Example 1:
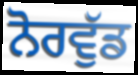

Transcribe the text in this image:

ਨੋਰਵੁੱਡ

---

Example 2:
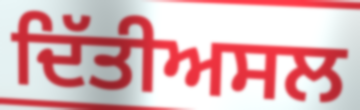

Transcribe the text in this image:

ਦਿੱਤੀਅਸਲ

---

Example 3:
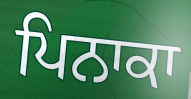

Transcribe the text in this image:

ਪਿਨਾਕਾ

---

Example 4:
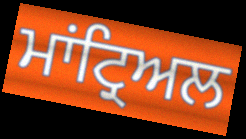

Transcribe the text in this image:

ਮਾਂਟ੍ਰਿਅਲ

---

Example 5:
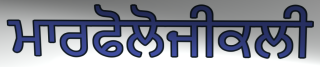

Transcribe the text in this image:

ਮਾਰਫੋਲੋਜੀਕਲੀ